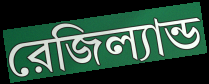
রেজিল্যান্ড